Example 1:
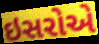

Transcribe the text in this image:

ઇસરોએ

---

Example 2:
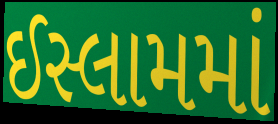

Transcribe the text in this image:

ઈસ્લામમાં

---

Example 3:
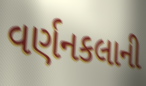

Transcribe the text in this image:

વર્ણનકલાની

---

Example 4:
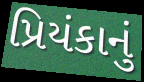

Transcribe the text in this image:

પ્રિયંકાનું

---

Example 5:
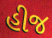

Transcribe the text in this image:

હીજ